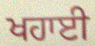
ਖਹਾਈ